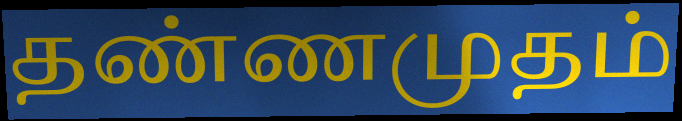
தண்ணமுதம்